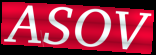
ASOV